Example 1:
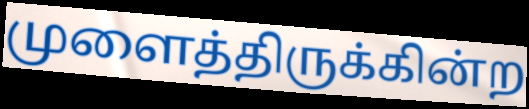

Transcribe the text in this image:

முளைத்திருக்கின்ற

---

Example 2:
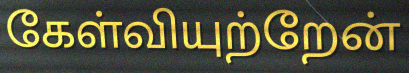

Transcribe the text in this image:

கேள்வியுற்றேன்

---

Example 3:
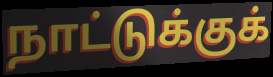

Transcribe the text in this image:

நாட்டுக்குக்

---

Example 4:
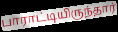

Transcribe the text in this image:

பாராட்டியிருந்தார்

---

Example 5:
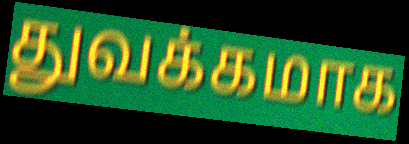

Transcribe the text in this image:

துவக்கமாக